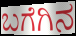
ಬಗೆಗಿನ